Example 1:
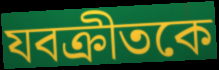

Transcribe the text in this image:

যবক্রীতকে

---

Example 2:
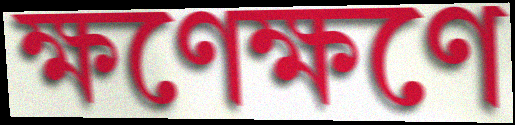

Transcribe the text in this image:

ক্ষণেক্ষণে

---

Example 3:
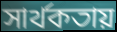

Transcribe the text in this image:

সার্থকতায়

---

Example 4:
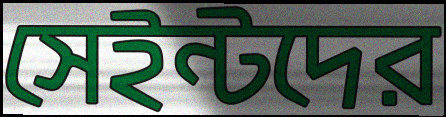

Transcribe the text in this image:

সেইন্টদের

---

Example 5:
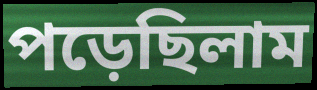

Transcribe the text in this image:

পড়েছিলাম